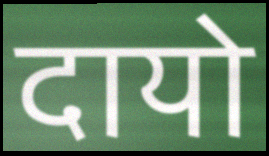
दायो